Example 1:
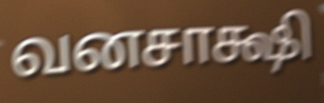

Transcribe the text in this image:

வனசாக்ஷி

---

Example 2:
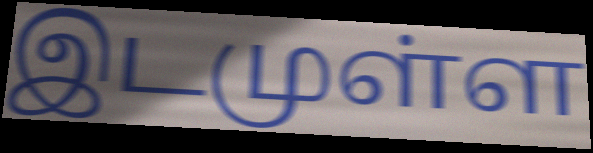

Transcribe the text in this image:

இடமுள்ள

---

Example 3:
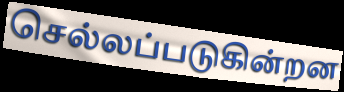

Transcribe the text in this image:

செல்லப்படுகின்றன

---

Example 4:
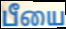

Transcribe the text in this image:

பீயை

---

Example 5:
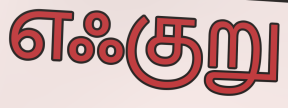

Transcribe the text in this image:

எஃகுறு